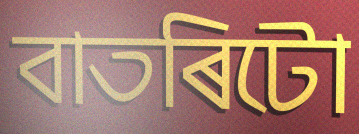
বাতৰিটো